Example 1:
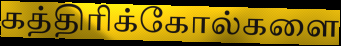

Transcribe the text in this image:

கத்திரிக்கோல்களை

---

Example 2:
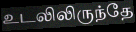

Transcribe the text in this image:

உடலிலிருந்தே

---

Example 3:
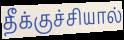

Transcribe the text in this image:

தீக்குச்சியால்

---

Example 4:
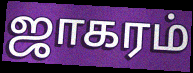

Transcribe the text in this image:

ஜாகரம்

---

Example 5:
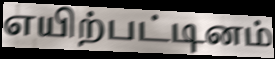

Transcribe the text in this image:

எயிற்பட்டினம்